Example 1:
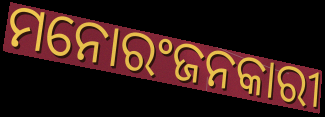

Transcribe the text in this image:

ମନୋରଂଜନକାରୀ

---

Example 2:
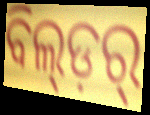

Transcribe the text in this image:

ବିଲ୍ଡ଼ର୍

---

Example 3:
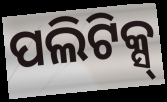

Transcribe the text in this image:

ପଲିଟିକ୍ସ୍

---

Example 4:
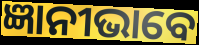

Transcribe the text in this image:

ଜ୍ଞାନୀଭାବେ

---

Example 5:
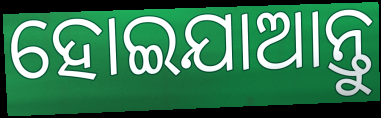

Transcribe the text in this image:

ହୋଇଯାଆନ୍ତୁ